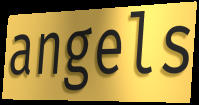
angels